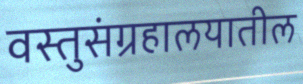
वस्तुसंग्रहालयातील